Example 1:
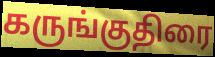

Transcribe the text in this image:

கருங்குதிரை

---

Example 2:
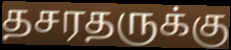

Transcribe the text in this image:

தசரதருக்கு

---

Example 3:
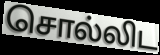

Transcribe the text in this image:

சொல்லிட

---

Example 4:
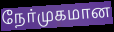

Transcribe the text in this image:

நேர்முகமான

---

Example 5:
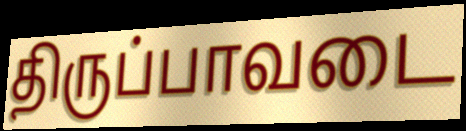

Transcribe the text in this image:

திருப்பாவடை